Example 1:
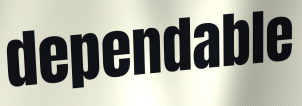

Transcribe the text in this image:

dependable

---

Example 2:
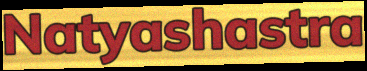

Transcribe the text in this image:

Natyashastra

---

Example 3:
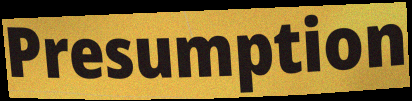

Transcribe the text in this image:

Presumption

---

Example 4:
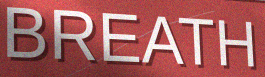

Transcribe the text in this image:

BREATH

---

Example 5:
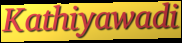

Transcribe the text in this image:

Kathiyawadi